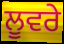
ਲੂਵਰੇ